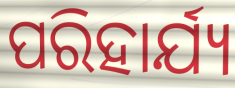
ପରିହାର୍ଯ୍ୟ